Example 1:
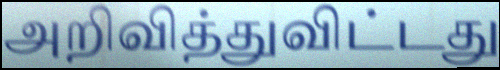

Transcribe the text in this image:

அறிவித்துவிட்டது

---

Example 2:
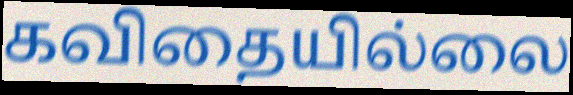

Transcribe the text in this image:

கவிதையில்லை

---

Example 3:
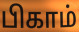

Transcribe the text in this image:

பிகாம்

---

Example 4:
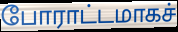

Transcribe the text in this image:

போராட்டமாகச்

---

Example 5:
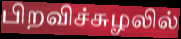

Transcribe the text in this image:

பிறவிச்சுழலில்